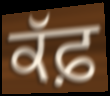
ਕੱਫ਼